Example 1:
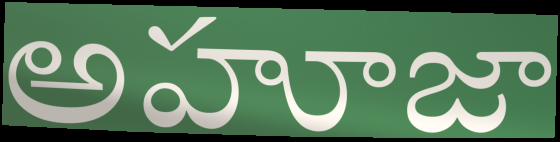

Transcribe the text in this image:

అహూజా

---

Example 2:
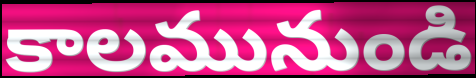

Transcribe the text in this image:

కాలమునుండి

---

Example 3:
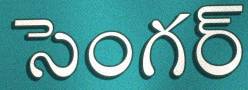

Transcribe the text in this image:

సెంగర్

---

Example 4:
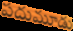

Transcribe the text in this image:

పదుమూడు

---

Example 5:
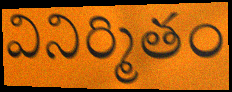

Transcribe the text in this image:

వినిర్మితం